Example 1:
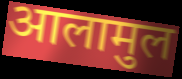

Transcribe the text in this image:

आलामुल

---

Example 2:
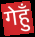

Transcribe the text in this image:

गेहुँ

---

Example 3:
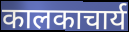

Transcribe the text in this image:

कालकाचार्य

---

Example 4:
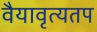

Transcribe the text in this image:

वैयावृत्यतप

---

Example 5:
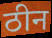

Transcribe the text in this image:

ठीन